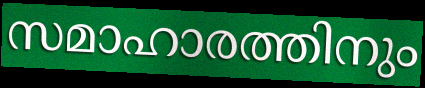
സമാഹാരത്തിനും